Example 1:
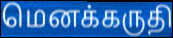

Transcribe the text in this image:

மெனக்கருதி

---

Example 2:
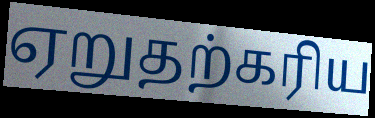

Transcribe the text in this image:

ஏறுதற்கரிய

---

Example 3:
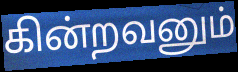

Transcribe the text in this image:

கின்றவனும்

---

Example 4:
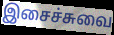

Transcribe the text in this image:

இசைச்சுவை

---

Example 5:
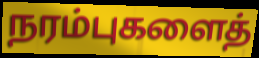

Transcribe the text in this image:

நரம்புகளைத்